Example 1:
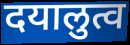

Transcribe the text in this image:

दयालुत्व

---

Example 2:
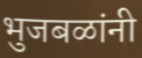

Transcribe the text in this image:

भुजबळांनी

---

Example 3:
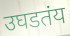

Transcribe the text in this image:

उघडतंय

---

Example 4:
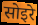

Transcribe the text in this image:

सोइरे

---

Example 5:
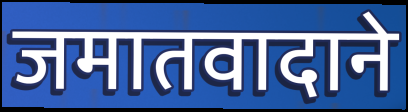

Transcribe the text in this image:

जमातवादाने